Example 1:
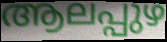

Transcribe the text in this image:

ആലപ്പുഴ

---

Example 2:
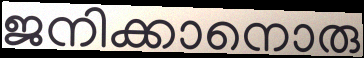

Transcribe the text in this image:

ജനിക്കാനൊരു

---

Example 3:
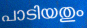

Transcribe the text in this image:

പാടിയതും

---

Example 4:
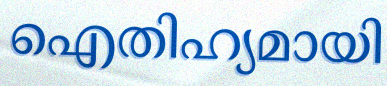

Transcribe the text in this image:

ഐതിഹ്യമായി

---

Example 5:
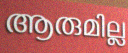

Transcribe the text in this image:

ആരുമില്ല